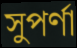
সুপর্ণা